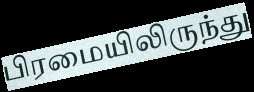
பிரமையிலிருந்து